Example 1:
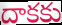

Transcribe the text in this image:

దాకకు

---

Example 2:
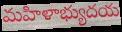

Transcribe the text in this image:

మహిళాభ్యుదయ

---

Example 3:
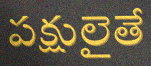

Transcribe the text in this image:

పక్షులైతే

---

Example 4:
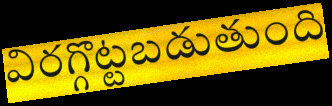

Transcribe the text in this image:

విరగ్గొట్టబడుతుంది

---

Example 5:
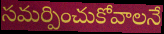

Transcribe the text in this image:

సమర్పించుకోవాలనే